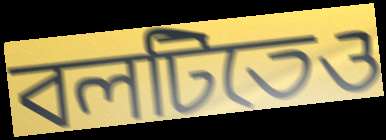
বলটিতেও